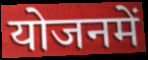
योजनमें